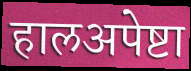
हालअपेष्टा